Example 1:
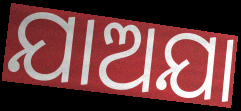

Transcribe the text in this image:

ଯାଅଯା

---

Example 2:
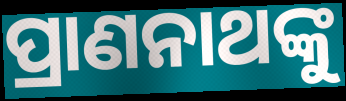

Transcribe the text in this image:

ପ୍ରାଣନାଥଙ୍କୁ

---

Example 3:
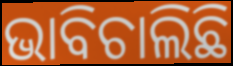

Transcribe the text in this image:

ଭାବିଚାଲିଛି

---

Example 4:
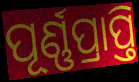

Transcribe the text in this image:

ପୂର୍ଣ୍ଣପ୍ରାପ୍ତି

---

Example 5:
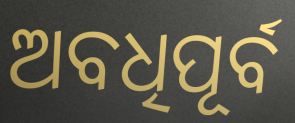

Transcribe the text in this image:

ଅବଧିପୂର୍ବ